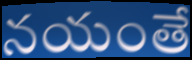
నయంతే